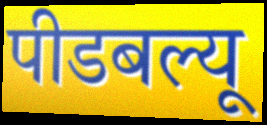
पीडबल्यू